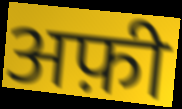
अफ़ी